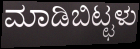
ಮಾಡಿಬಿಟ್ಟಳು